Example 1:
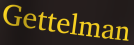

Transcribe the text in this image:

Gettelman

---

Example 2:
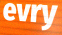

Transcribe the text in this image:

evry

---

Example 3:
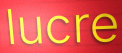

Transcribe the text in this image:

lucre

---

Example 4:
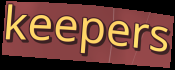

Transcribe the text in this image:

keepers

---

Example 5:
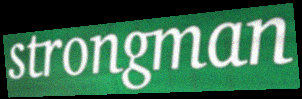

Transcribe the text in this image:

strongman